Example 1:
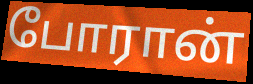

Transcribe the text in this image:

போரான்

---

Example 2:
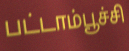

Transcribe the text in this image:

பட்டாம்பூச்சி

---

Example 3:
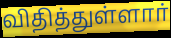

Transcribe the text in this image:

விதித்துள்ளார்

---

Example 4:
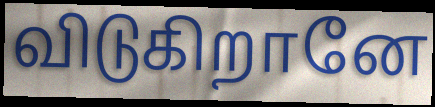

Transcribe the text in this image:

விடுகிறானே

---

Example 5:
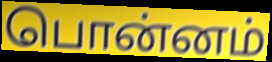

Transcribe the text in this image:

பொன்னம்